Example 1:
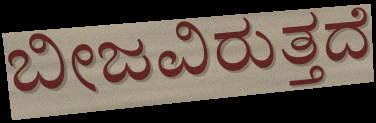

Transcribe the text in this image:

ಬೀಜವಿರುತ್ತದೆ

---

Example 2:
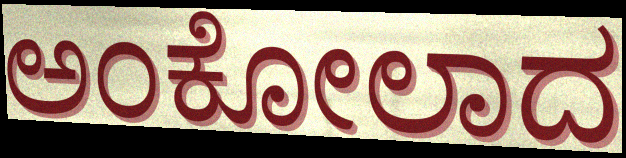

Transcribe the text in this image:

ಅಂಕೋಲಾದ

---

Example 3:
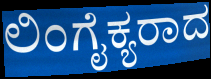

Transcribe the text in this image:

ಲಿಂಗೈಕ್ಯರಾದ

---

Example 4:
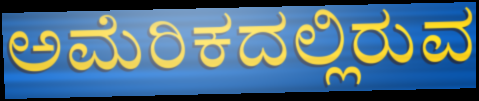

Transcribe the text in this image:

ಅಮೆರಿಕದಲ್ಲಿರುವ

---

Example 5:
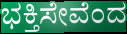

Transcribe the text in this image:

ಭಕ್ತಿಸೇವೆಂದ